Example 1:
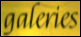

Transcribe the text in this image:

galeries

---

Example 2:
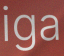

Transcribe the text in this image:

iga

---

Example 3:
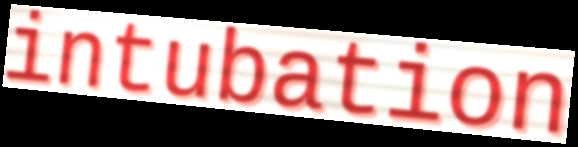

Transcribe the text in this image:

intubation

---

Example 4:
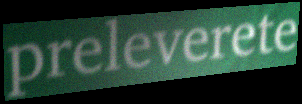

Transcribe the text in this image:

preleverete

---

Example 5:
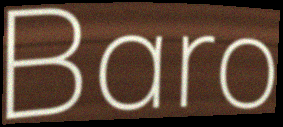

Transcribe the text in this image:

Baro